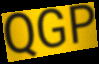
QGP